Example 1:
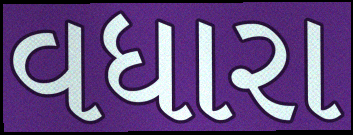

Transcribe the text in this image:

વધારા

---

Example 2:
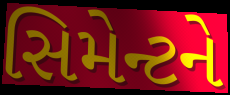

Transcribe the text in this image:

સિમેન્ટને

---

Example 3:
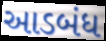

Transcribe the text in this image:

આડબંધ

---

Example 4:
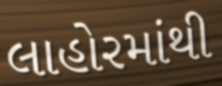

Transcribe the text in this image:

લાહોરમાંથી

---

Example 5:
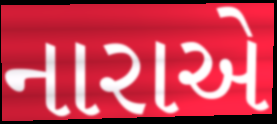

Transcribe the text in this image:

નારાએ